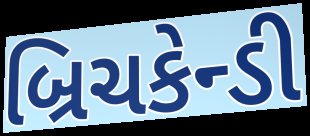
બ્રિચકેન્ડી